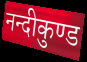
नन्दीकुण्ड